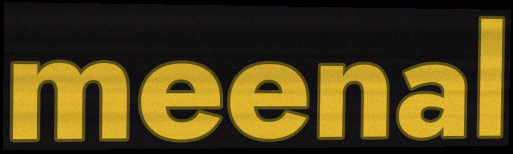
meenal